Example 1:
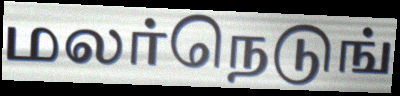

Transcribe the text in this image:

மலர்நெடுங்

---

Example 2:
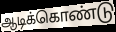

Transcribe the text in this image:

ஆடிக்கொண்டு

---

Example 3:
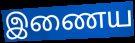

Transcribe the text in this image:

இணைய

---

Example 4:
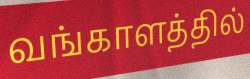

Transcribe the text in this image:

வங்காளத்தில்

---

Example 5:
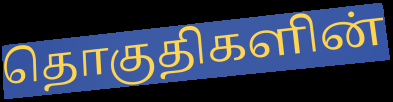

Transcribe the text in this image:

தொகுதிகளின்